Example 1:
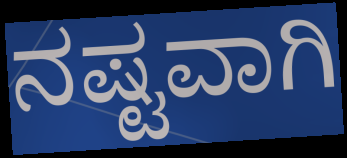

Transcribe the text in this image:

ನಷ್ಟವಾಗಿ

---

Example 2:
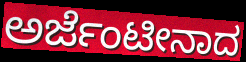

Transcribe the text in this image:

ಅರ್ಜೆಂಟೀನಾದ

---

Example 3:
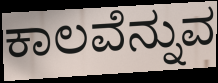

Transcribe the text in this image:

ಕಾಲವೆನ್ನುವ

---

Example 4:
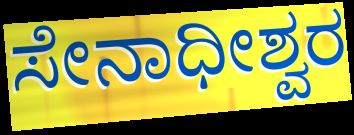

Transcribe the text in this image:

ಸೇನಾಧೀಶ್ವರ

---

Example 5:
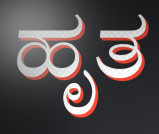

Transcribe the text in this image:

ಹೃತ